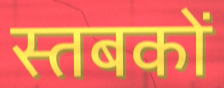
स्तबकों